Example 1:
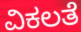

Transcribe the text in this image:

ವಿಕಲತೆ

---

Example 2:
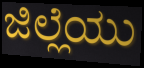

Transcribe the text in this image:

ಜಿಲ್ಲೆಯು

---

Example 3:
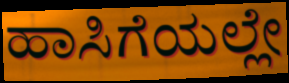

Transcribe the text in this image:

ಹಾಸಿಗೆಯಲ್ಲೇ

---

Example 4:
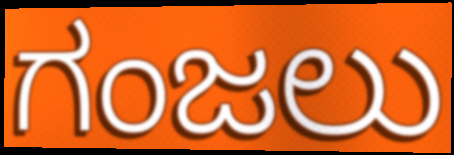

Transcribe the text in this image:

ಗಂಜಲು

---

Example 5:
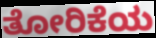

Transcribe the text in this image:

ತೋರಿಕೆಯ